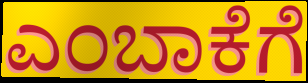
ಎಂಬಾಕೆಗೆ